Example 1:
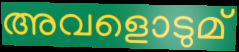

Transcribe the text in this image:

അവളൊടുമ്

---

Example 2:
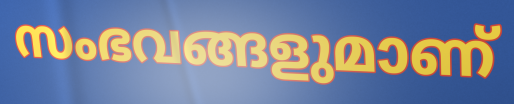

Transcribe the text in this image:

സംഭവങ്ങളുമാണ്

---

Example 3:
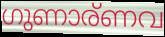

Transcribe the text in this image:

ഗുണാര്ണവ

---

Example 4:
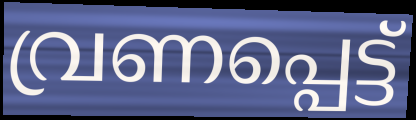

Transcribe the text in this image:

വ്രണപ്പെട്ട്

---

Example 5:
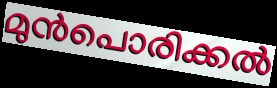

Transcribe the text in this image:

മുൻപൊരിക്കൽ